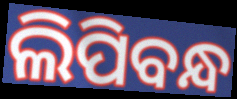
ଲିପିବନ୍ଧ